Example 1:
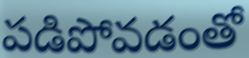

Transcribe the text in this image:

పడిపోవడంతో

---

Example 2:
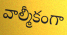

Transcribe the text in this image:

వాల్మీకంగా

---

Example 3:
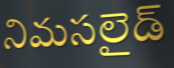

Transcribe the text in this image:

నిమసలైడ్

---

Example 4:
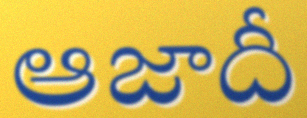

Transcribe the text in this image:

ఆజాదీ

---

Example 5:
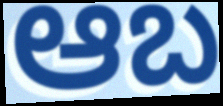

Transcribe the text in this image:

ఆబ